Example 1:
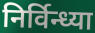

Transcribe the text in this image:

निर्विन्ध्या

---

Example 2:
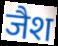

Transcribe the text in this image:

जैश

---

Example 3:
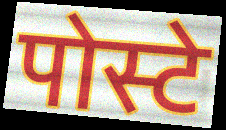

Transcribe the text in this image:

पोस्टे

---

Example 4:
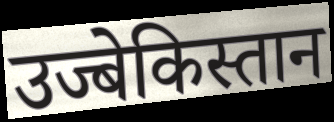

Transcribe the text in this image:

उज्बेकिस्तान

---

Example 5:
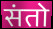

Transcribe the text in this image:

संतो